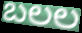
బలల